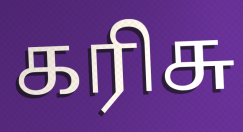
கரிசு